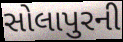
સોલાપુરની